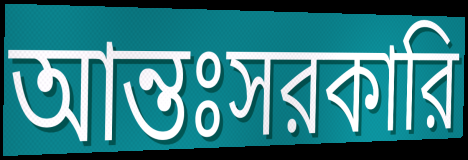
আন্তঃসরকারি